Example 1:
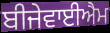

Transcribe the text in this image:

ਬੀਜੇਵਾਈਐਮ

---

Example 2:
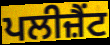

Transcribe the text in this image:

ਪਲੀਜ਼ੈਂਟ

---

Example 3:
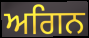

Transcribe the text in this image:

ਅਗਿਨ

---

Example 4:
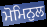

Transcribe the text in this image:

ਮੋਮਿਨੁਲ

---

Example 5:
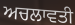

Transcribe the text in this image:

ਅਚਲਾਵਤੀ